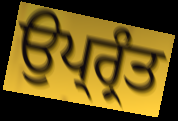
ਉਪ੍ਰ੍ਰੰਤ